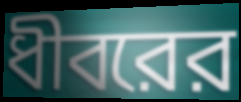
ধীবরের